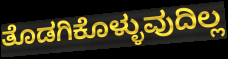
ತೊಡಗಿಕೊಳ್ಳುವುದಿಲ್ಲ